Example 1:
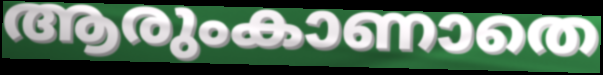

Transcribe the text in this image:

ആരുംകാണാതെ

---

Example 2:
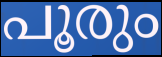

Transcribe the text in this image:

പൂരും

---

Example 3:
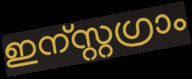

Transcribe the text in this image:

ഇന്സ്റ്റഗ്രാം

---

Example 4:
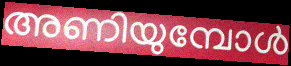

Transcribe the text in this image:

അണിയുമ്പോൾ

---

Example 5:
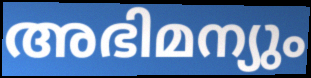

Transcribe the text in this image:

അഭിമന്യും